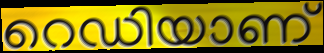
റെഡിയാണ്